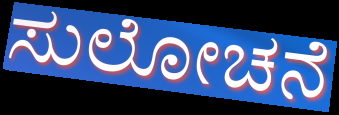
ಸುಲೋಚನೆ